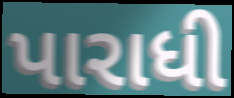
પારાધી